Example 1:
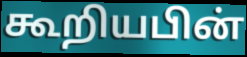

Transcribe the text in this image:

கூறியபின்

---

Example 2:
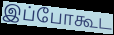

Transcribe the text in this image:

இப்போகூட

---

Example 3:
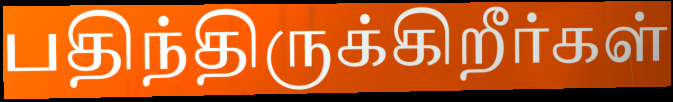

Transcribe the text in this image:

பதிந்திருக்கிறீர்கள்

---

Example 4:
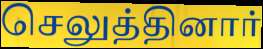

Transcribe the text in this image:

செலுத்தினார்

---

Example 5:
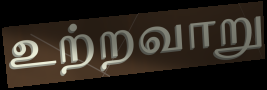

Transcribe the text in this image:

உற்றவாறு